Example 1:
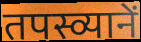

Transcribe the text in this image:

तपस्व्यानें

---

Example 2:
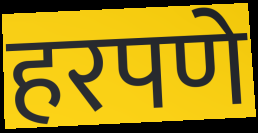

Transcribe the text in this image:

हरपणे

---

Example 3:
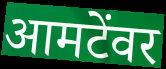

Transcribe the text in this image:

आमटेंवर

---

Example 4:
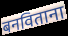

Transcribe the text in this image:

बनविताना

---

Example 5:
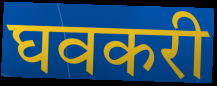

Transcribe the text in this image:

घवकरी